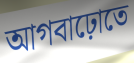
আগবাঢ়োতে